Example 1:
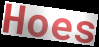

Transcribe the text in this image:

Hoes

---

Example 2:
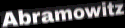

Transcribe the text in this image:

Abramowitz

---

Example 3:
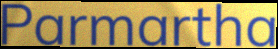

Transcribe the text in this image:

Parmartha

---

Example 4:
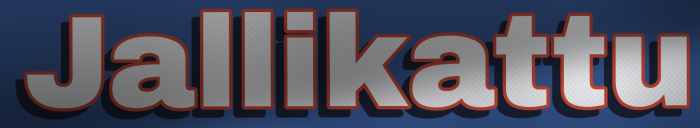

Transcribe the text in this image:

Jallikattu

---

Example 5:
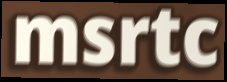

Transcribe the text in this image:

msrtc